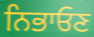
ਨਿਭਾਓਣ